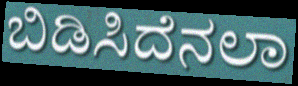
ಬಿಡಿಸಿದೆನಲಾ